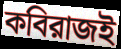
কবিরাজই